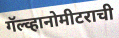
गॅल्व्हानोमीटराची